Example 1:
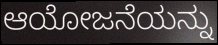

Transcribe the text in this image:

ಆಯೋಜನೆಯನ್ನು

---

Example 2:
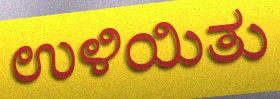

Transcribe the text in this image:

ಉಳಿಯಿತು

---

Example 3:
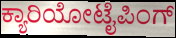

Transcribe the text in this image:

ಕ್ಯಾರಿಯೋಟೈಪಿಂಗ್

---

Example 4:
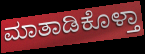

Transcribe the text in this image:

ಮಾತಾಡಿಕೊಳ್ತಾ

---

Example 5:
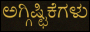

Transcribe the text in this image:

ಅಗ್ಗಿಷ್ಟಿಕೆಗಳು